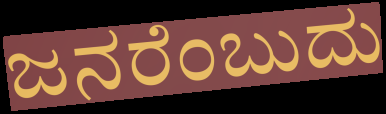
ಜನರೆಂಬುದು